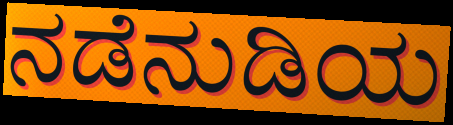
ನಡೆನುಡಿಯ